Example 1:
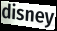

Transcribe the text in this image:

disney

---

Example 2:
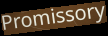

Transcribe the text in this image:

Promissory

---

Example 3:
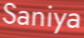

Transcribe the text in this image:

Saniya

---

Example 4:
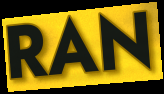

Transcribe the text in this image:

RAN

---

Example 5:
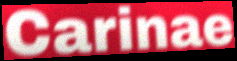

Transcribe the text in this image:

Carinae